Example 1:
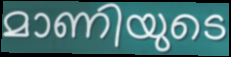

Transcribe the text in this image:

മാണിയുടെ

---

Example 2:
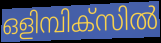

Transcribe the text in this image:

ഒളിമ്പിക്സിൽ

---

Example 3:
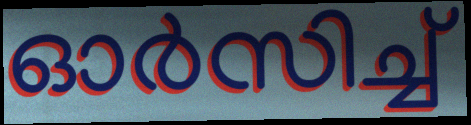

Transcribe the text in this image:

ഓർസിച്ച്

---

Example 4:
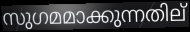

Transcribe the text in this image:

സുഗമമാക്കുന്നതില്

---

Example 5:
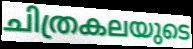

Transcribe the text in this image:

ചിത്രകലയുടെ